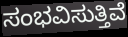
ಸಂಭವಿಸುತ್ತಿವೆ